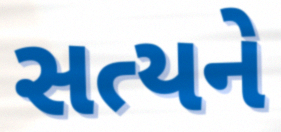
સત્યને